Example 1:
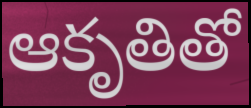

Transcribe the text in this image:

ఆకృతితో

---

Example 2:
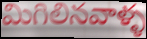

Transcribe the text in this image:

మిగిలినవాళ్ళ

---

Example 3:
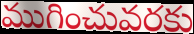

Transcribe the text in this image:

ముగించువరకు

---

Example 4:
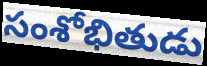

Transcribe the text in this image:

సంశోభితుడు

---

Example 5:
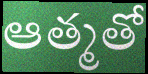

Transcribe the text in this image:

ఆత్మతో